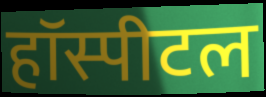
हॉस्पीटल